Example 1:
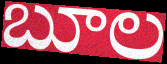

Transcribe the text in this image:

బూల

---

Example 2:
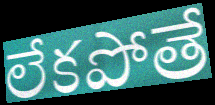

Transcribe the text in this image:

లేకపోతే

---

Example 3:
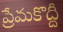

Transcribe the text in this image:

ప్రేమకొద్దీ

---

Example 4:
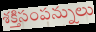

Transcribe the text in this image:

శక్తిసంపన్నులు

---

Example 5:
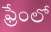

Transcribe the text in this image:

ఫ్రేంలో